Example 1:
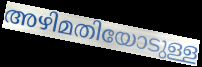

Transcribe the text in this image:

അഴിമതിയോടുള്ള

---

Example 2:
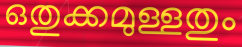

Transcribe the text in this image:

ഒതുക്കമുള്ളതും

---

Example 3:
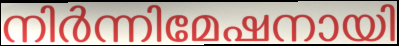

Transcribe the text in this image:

നിർന്നിമേഷനായി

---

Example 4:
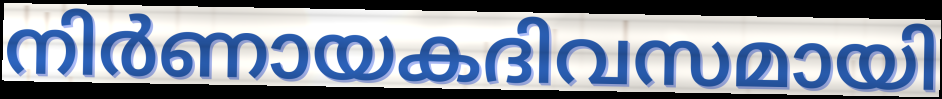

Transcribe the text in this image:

നിർണായകദിവസമായി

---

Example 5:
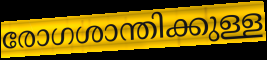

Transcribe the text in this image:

രോഗശാന്തിക്കുള്ള